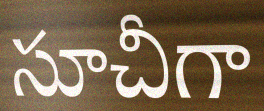
సూచీగా